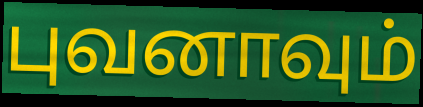
புவனாவும்